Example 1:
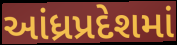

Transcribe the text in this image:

આંધ્રપ્રદેશમાં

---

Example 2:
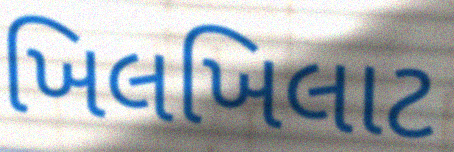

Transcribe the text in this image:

ખિલખિલાટ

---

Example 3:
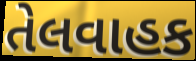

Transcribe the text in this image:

તેલવાહક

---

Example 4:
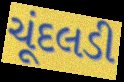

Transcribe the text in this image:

ચૂંદલડી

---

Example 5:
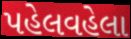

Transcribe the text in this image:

પહેલવહેલા